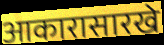
आकारासारखे